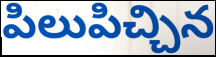
పిలుపిచ్చిన